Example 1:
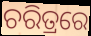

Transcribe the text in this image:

ଚରିତ୍ରରେ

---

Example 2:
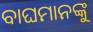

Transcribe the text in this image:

ବାଘମାନଙ୍କୁ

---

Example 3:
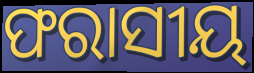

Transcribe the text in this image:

ଫରାସୀୟ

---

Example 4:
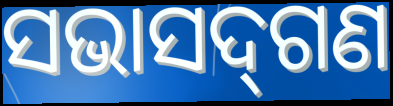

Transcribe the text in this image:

ସଭାସଦ୍‌ଗଣ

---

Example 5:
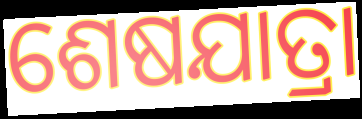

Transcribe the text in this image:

ଶେଷଯାତ୍ରା